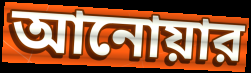
আনোয়ার